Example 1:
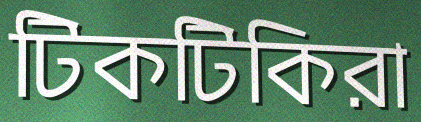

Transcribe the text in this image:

টিকটিকিরা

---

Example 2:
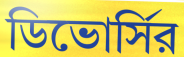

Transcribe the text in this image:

ডিভোর্সির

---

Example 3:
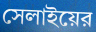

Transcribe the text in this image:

সেলাইয়ের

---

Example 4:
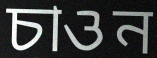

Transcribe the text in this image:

চাওন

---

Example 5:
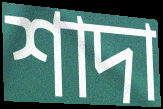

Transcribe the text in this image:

শাদা